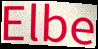
Elbe